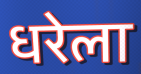
धरेला